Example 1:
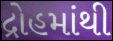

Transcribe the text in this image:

દ્રોહમાંથી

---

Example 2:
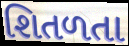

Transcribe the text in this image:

શિતળતા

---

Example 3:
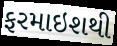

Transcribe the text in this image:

ફરમાઇશથી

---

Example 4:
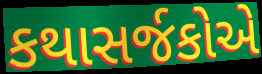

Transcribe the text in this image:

કથાસર્જકોએ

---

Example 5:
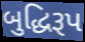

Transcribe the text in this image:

બુદ્ધિરૂપ